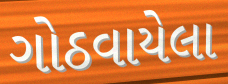
ગોઠવાયેલા